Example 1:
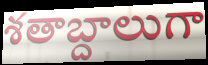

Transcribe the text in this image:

శతాబ్దాలుగా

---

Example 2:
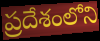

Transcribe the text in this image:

ప్రదేశంలోని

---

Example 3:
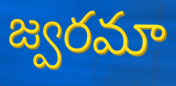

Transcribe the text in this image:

జ్వరమా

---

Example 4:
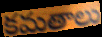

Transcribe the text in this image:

కమతాలు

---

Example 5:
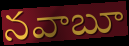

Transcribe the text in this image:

నవాబూ